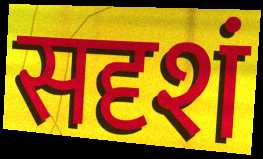
सदृशं